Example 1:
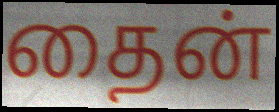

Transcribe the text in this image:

தைன்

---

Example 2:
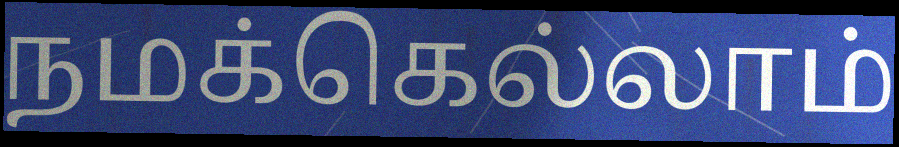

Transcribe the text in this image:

நமக்கெல்லாம்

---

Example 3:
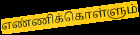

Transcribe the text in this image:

எண்ணிக்கொள்ளும்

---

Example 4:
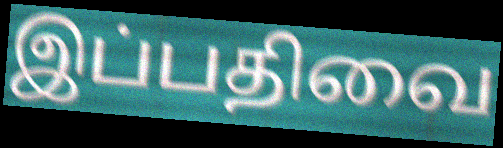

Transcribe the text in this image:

இப்பதிவை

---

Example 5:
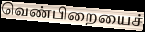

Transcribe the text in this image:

வெண்பிறையைச்